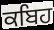
ਕਬਿਹ